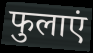
फुलाएं